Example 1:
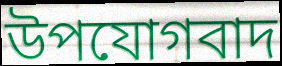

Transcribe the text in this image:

উপযোগবাদ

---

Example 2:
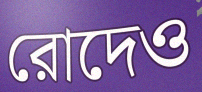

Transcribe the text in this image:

রোদেও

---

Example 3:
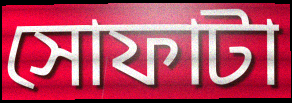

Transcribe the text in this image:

সোফাটা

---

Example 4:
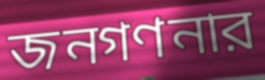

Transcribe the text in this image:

জনগণনার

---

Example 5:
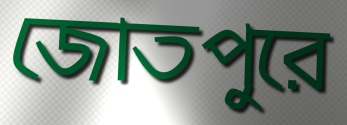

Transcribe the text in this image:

জোতপুরে